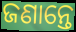
ଜଣାନ୍ତେ